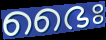
ഭൈഃ